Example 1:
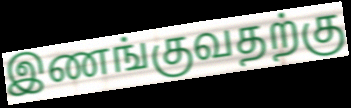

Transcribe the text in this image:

இணங்குவதற்கு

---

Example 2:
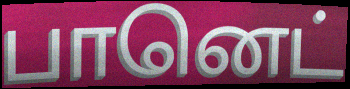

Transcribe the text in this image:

பானெட்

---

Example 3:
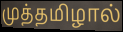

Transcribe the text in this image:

முத்தமிழால்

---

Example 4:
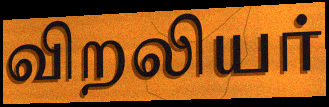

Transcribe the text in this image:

விறலியர்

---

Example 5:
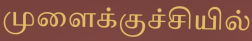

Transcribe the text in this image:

முளைக்குச்சியில்